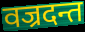
वज्रदन्त